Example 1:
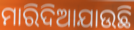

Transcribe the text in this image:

ମାରିଦିଆଯାଉଛି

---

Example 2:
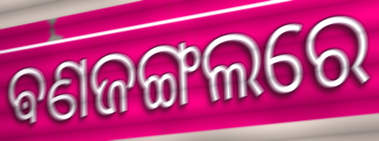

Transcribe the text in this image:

ଵଣଜଙ୍ଗଲରେ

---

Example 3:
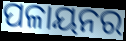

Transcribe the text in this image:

ପଳାୟନର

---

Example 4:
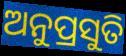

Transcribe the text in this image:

ଅନୁପ୍ରସୁତି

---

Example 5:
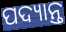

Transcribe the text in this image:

ପଦ୍ୟାନ୍ତ